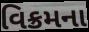
વિક્રમના